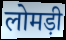
लोमड़ी